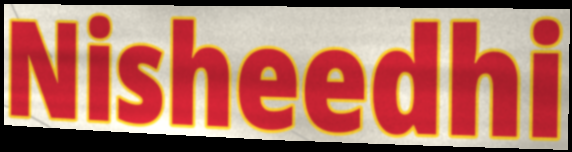
Nisheedhi